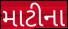
માટીના